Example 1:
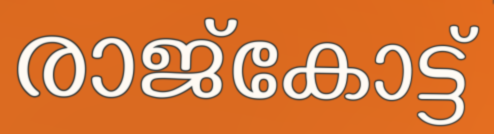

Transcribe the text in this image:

രാജ്കോട്ട്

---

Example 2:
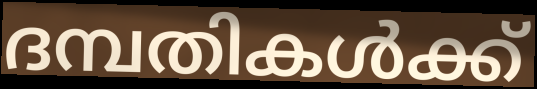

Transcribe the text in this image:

ദമ്പതികൾക്ക്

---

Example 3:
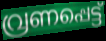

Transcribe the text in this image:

വ്രണപ്പെട്ട്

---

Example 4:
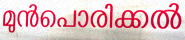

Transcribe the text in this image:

മുൻപൊരിക്കൽ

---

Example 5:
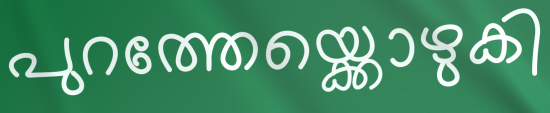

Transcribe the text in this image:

പുറത്തേയ്ക്കൊഴുകി